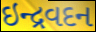
ઇન્દ્રવદન